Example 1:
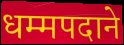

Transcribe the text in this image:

धम्मपदाने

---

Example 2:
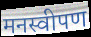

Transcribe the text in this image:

मनस्वीपण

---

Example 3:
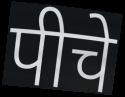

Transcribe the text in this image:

पीचे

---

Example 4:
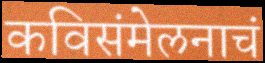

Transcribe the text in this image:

कविसंमेलनाचं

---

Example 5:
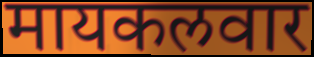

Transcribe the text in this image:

मायकलवार